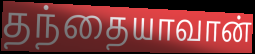
தந்தையாவான்